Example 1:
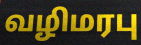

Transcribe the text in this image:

வழிமரபு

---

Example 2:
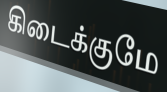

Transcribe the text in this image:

கிடைக்குமே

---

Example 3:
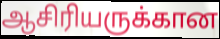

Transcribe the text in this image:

ஆசிரியருக்கான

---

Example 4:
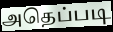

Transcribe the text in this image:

அதெப்படி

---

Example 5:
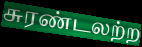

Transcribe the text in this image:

சுரண்டலற்ற